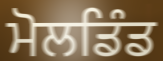
ਮੋਲਡਿੰਡ